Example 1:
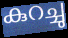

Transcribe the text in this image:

കുറച്ചു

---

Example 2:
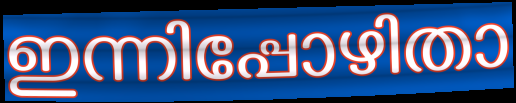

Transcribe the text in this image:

ഇന്നിപ്പോഴിതാ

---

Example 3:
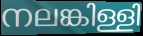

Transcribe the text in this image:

നലങ്കിള്ളി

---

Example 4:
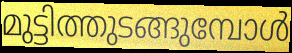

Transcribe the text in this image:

മുട്ടിത്തുടങ്ങുമ്പോൾ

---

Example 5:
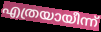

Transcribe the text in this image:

എത്രയായീന്ന്